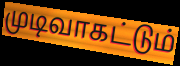
முடிவாகட்டும்